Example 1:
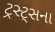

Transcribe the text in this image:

ટ્રસ્ટ્સના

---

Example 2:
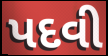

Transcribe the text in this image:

પદવી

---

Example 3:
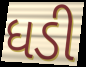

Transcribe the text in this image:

ધડી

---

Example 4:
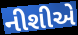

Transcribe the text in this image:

નીશીએ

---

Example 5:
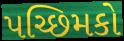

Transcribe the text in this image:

પચ્છિમકો